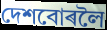
দেশবোৰলৈ